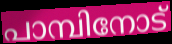
പാമ്പിനോട്